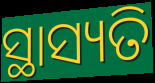
ସ୍ଥାସ୍ୟତି